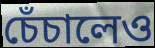
চেঁচালেও